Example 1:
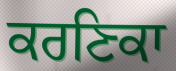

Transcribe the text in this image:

ਕਰਣਿਕਾ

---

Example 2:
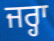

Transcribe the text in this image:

ਜਰ੍ਹਾ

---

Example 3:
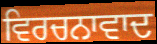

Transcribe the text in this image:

ਵਿਰਚਨਾਵਾਦ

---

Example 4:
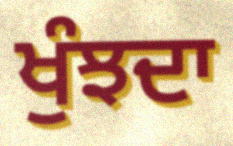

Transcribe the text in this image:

ਖੁੰਝਦਾ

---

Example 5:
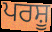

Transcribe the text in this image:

ਪਰਸ਼ੂ